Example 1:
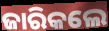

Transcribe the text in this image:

ଜାରିକଲେ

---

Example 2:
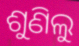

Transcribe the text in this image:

ଶୁଣିଲୁ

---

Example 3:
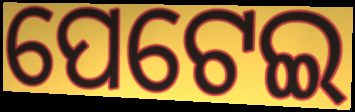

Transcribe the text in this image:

ପେଟେଇ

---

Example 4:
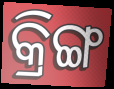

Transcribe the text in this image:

କ୍ରିଙ୍ଗ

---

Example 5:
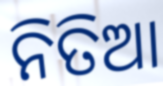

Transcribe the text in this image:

ନିତିଆ